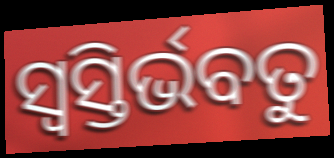
ସ୍ୱସ୍ତିର୍ଭବତୁ